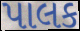
પાલક